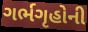
ગર્ભગૃહોની